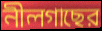
নীলগাছের